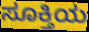
ಸೂಕ್ತಿಯ